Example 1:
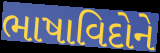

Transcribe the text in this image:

ભાષાવિદોને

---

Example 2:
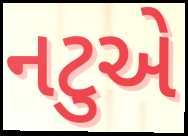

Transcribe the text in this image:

નટુએ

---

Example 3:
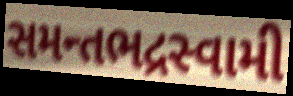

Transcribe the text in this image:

સમન્તભદ્રસ્વામી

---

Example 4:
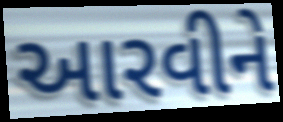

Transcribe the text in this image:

આરવીને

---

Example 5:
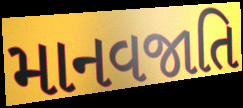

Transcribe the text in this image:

માનવજાતિ